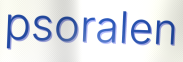
psoralen